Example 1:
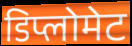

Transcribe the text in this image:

डिप्लोमेट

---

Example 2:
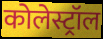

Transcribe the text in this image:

कोलेस्ट्रॉल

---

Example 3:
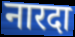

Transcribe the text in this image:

नारदा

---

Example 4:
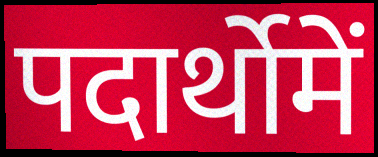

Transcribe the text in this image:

पदार्थोमें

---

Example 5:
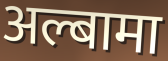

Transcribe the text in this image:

अल्बामा